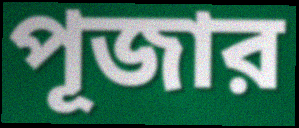
পূজার